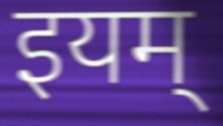
इयम्